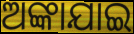
ଅଙ୍କାଯାଇ